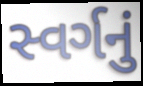
સ્વર્ગનું